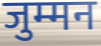
जुम्मन